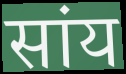
सांय